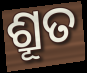
ଶ୍ରୂତ